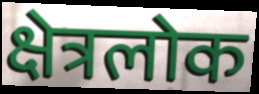
क्षेत्रलोक